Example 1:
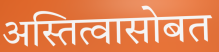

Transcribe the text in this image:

अस्तित्वासोबत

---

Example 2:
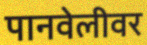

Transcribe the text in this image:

पानवेलीवर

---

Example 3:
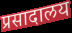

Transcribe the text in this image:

प्रसादालय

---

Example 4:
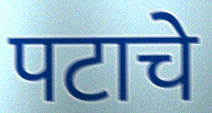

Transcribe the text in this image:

पटाचे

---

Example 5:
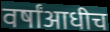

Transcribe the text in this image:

वर्षांआधीच